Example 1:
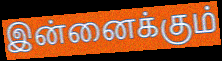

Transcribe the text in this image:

இன்னைக்கும்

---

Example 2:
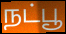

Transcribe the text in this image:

நட்பூ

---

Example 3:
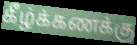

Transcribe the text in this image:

கீழ்க்கணக்கு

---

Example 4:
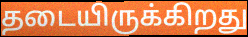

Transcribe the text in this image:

தடையிருக்கிறது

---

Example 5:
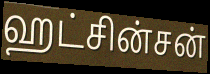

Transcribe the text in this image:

ஹட்சின்சன்